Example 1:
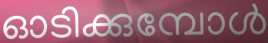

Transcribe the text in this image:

ഓടിക്കുമ്പോൾ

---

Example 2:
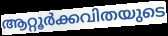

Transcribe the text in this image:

ആറ്റൂർക്കവിതയുടെ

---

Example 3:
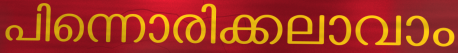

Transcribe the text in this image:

പിന്നൊരിക്കലാവാം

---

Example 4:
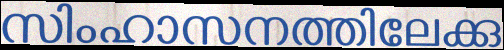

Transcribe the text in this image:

സിംഹാസനത്തിലേക്കു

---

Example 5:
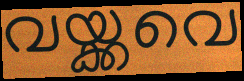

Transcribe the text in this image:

വയ്ക്കവെ